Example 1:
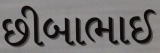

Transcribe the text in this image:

છીબાભાઈ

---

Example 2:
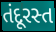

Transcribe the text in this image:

તંદૂરસ્ત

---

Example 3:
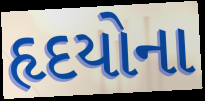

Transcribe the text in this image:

હૃદયોના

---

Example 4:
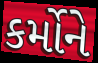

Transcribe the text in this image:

કર્મોને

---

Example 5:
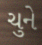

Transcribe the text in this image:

ચુને